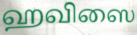
ஹவிஸை